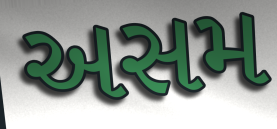
અસમ